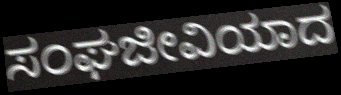
ಸಂಘಜೀವಿಯಾದ